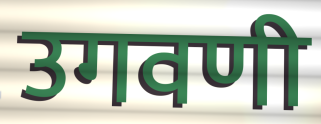
उगवणी